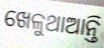
ଖେଳୁଥାଆନ୍ତି